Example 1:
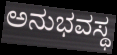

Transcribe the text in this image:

ಅನುಭವಸ್ಥ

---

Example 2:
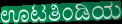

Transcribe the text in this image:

ಊಟತಿಂಡಿಯ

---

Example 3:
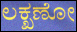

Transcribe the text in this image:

ಲಕ್ಖಣೋ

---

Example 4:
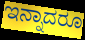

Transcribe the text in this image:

ಇನ್ನಾದರೂ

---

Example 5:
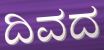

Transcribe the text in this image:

ದಿವದ